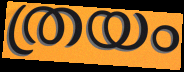
ത്രയം